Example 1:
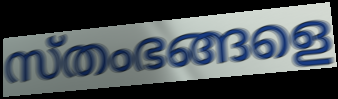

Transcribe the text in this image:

സ്തംഭങ്ങളെ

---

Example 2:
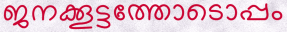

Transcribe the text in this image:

ജനക്കൂട്ടത്തോടൊപ്പം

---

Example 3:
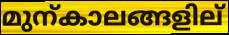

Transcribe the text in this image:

മുന്കാലങ്ങളില്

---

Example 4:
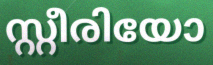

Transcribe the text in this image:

സ്റ്റീരിയോ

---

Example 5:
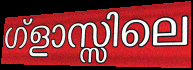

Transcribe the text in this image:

ഗ്ളാസ്സിലെ